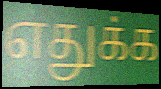
எதுக்க